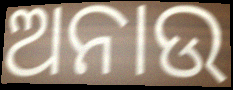
ଅନାଉ